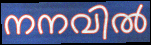
നനവിൽ